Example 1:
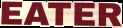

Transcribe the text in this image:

EATER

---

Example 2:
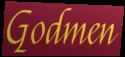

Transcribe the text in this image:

Godmen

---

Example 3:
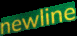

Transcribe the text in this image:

newline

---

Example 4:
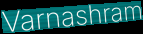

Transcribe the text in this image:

Varnashram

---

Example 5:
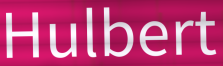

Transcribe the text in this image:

Hulbert